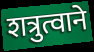
शत्रुत्वाने